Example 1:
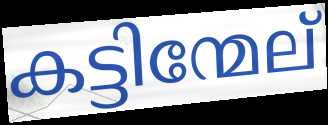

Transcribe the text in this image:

കട്ടിന്മേല്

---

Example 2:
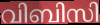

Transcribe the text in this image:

വിബിസി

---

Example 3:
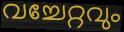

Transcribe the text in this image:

വച്ചേറ്റവും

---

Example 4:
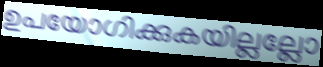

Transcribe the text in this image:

ഉപയോഗിക്കുകയില്ലല്ലോ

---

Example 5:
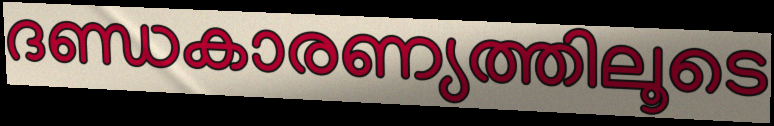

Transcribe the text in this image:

ദണ്ഡകാരണ്യത്തിലൂടെ